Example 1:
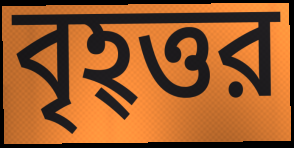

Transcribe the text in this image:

বৃহ্ত্তর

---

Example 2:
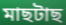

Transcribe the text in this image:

মাছটাছ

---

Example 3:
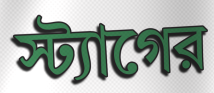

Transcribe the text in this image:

স্ট্যাগের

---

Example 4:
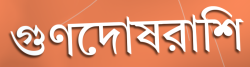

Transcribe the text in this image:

গুণদোষরাশি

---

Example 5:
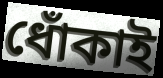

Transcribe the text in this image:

ধোঁকাই